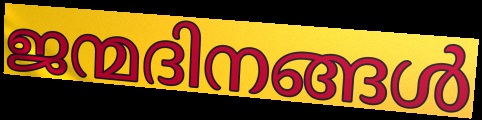
ജന്മദിനങ്ങൾ